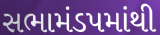
સભામંડપમાંથી